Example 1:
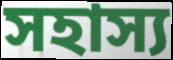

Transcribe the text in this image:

সহাস্য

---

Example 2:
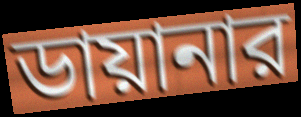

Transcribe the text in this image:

ডায়ানার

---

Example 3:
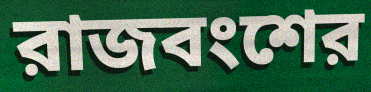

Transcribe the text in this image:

রাজবংশের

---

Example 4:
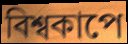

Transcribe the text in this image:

বিশ্বকাপে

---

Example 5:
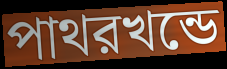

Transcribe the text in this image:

পাথরখন্ডে